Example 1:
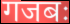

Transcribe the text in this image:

गजबः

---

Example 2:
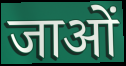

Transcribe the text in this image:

जाओं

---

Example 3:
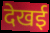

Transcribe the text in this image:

देखई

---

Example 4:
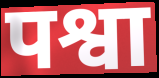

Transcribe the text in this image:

पश्वा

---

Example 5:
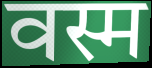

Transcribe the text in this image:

वस्म